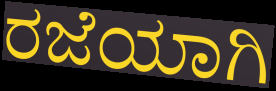
ರಜೆಯಾಗಿ